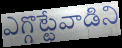
ఎగ్గొట్టేవాడిని